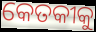
କେତକୀକୁ